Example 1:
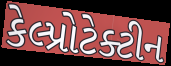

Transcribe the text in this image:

કેલ્પ્રોટેક્ટીન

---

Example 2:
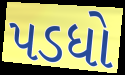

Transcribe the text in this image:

પડધો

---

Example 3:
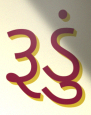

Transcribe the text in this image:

રૂડું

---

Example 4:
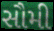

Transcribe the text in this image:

સૌમી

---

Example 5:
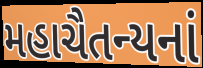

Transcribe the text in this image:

મહાચૈતન્યનાં